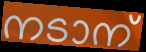
നടാന്